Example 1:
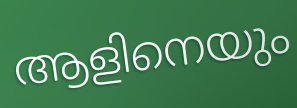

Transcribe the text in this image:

ആളിനെയും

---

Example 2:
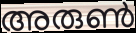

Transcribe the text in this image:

അരുൺ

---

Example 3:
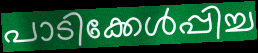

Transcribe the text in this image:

പാടിക്കേൾപ്പിച്ച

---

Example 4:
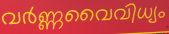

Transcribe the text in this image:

വർണ്ണവൈവിധ്യം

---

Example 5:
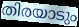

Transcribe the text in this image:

തിരയാടും